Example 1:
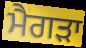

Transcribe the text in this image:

ਮੈਗੜਾ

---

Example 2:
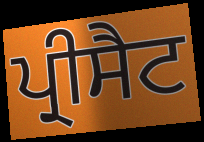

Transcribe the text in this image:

ਪ੍ਰੀਸੈਟ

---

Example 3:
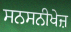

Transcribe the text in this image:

ਸਨਸਨੀਖੇਜ਼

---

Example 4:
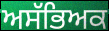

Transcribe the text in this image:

ਅਸੱਭਿਅਕ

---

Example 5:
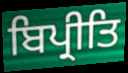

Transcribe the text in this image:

ਬਿਪ੍ਰੀਤਿ